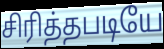
சிரித்தபடியே